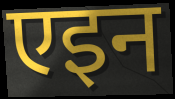
एइन